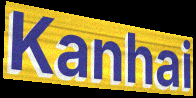
Kanhai